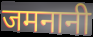
जमनानी